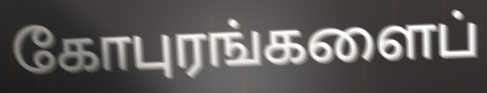
கோபுரங்களைப்